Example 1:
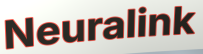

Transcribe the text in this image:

Neuralink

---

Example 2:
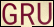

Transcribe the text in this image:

GRU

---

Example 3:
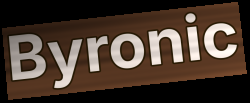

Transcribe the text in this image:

Byronic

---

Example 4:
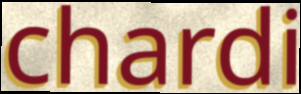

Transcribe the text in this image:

chardi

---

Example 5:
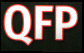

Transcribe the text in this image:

QFP